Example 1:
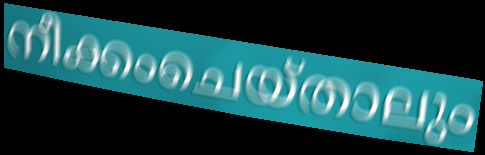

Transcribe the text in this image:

നീക്കംചെയ്താലും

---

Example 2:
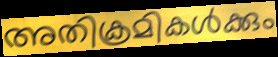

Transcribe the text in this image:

അതിക്രമികൾക്കും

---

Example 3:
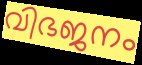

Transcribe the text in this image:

വിഭജനം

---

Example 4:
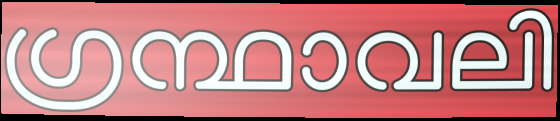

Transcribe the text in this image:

ഗ്രന്ഥാവലി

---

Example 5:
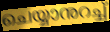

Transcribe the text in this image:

ചെയ്യാനുറച്ച്